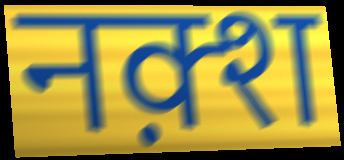
नक़्श